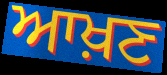
ਆਖ਼ਣ